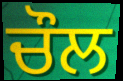
ਚੌਲ